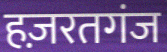
हज़रतगंज